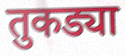
तुकड्या